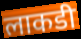
लाकडी